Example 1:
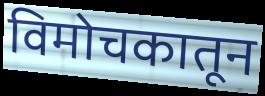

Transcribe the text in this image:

विमोचकातून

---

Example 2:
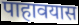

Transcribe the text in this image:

पाहावयास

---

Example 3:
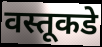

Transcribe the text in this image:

वस्तूकडे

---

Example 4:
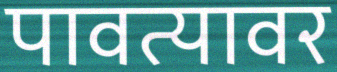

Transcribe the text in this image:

पावत्यावर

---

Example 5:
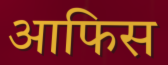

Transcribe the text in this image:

आफिस